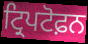
ਟ੍ਰਿਪਟੋਫ਼ਨ